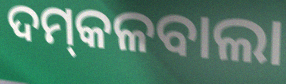
ଦମ୍‍କଳବାଲା